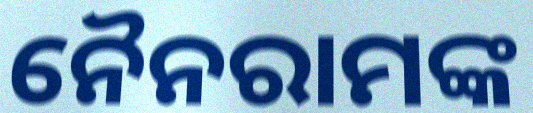
ନୈନରାମଙ୍କ